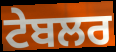
ਟੇਬਲਰ